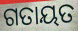
ଗତାୟତ